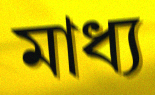
মাধ্য